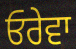
ਓਰੇਵਾ